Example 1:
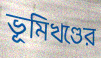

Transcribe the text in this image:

ভূমিখণ্ডের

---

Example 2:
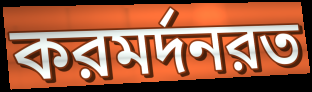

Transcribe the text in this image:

করমর্দনরত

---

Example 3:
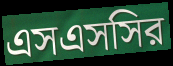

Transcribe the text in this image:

এসএসসির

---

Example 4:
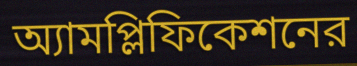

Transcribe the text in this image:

অ্যামপ্লিফিকেশনের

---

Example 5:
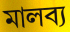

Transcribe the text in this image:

মালব্য